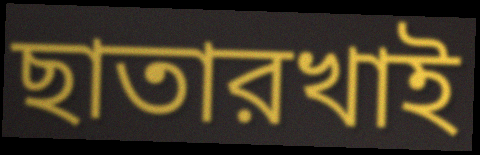
ছাতারখাই